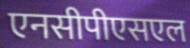
एनसीपीएसएल